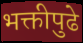
भक्तीपुढे